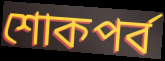
শোকপর্ব